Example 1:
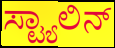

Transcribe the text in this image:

ಸ್ಟ್ಯಾಲಿನ್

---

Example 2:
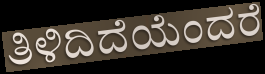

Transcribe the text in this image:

ತಿಳಿದಿದೆಯೆಂದರೆ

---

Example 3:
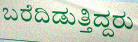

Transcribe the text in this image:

ಬರೆದಿಡುತ್ತಿದ್ದರು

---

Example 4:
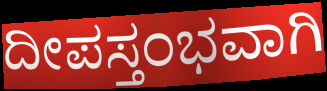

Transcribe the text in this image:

ದೀಪಸ್ತಂಭವಾಗಿ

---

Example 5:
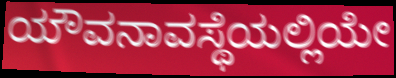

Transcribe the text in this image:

ಯೌವನಾವಸ್ಥೆಯಲ್ಲಿಯೇ